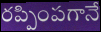
రప్పింపగానే